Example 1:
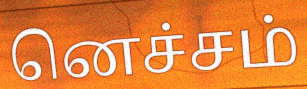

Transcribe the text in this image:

னெச்சம்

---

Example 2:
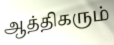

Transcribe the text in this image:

ஆத்திகரும்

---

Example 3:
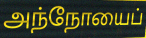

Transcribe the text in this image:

அந்நோயைப்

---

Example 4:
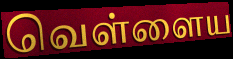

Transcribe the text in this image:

வெள்ளைய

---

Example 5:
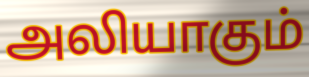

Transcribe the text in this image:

அலியாகும்